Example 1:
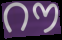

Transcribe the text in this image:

റൗ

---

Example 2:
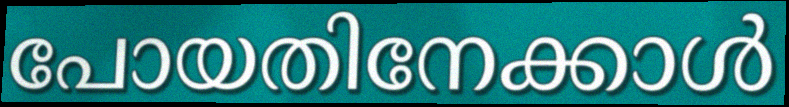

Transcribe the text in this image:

പോയതിനേക്കാൾ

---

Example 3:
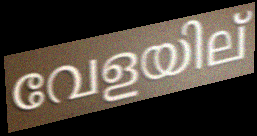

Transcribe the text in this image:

വേളയില്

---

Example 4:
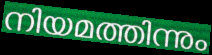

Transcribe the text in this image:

നിയമത്തിന്നും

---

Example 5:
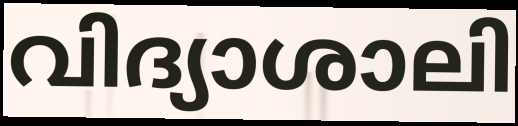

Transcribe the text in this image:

വിദ്യാശാലി